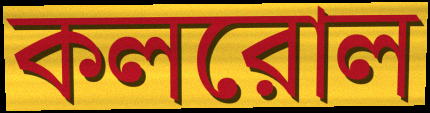
কলরোল